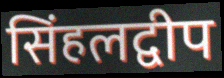
सिंहलद्वीप